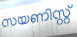
സയണിസ്റ്റ്